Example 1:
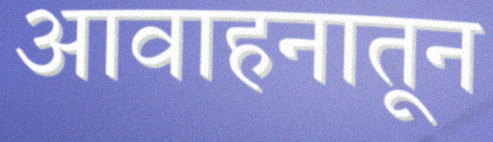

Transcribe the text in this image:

आवाहनातून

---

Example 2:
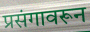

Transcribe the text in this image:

प्रसंगावरून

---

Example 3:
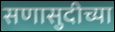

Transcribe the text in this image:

सणासुदीच्या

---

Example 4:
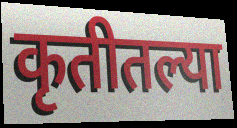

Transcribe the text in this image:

कृतीतल्या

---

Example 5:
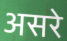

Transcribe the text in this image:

असरे